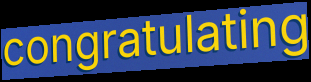
congratulating